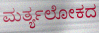
ಮರ್ತ್ಯಲೋಕದ